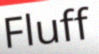
Fluff